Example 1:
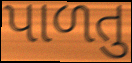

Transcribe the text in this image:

પાળતુ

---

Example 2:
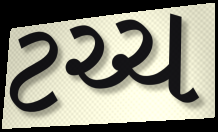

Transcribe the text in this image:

ટચ્ચ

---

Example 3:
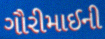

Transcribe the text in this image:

ગૌરીમાઈની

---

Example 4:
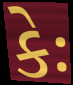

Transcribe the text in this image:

કેઃ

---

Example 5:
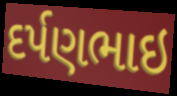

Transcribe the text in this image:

દર્પણભાઇ